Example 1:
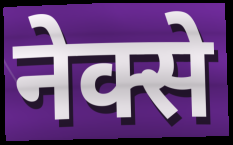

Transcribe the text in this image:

नेक्से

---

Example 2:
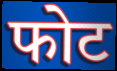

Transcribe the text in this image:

फोट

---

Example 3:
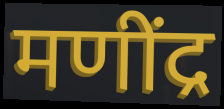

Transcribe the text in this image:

मणींद्र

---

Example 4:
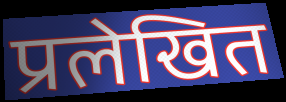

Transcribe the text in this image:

प्रलेखित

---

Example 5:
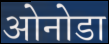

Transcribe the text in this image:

ओनोडा